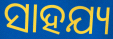
ସାହଯ୍ୟ